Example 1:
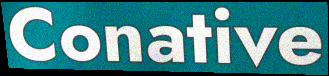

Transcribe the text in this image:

Conative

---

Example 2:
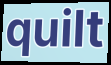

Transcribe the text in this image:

quilt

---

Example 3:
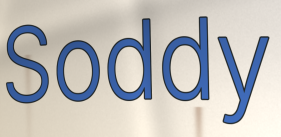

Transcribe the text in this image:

Soddy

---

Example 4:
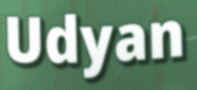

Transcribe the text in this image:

Udyan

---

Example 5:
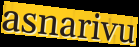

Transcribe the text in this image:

asnarivu